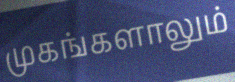
முகங்களாலும்